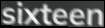
sixteen